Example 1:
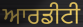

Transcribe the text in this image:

ਆਰਡੀਟੀ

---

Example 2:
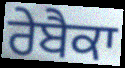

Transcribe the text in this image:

ਰੇਬੈਕਾ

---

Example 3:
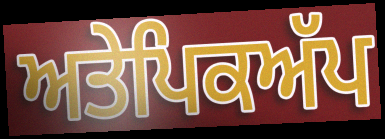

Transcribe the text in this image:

ਅਤੇਪਿਕਅੱਪ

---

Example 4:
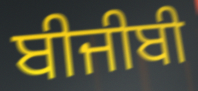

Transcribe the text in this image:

ਬੀਜੀਬੀ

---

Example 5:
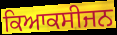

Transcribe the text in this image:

ਕਿਆਕਸੀਜਨ